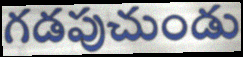
గడపుచుండు